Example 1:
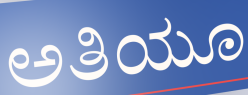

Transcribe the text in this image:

ಅತಿಯೂ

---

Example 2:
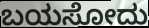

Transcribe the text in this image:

ಬಯಸೋದು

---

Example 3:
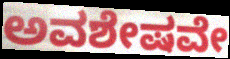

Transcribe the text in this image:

ಅವಶೇಷವೇ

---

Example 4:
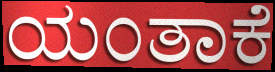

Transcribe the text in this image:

ಯಂತಾಕೆ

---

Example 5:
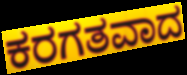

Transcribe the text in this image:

ಕರಗತವಾದ